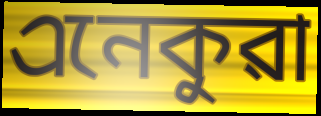
এনেকুৱা